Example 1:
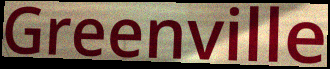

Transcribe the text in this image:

Greenville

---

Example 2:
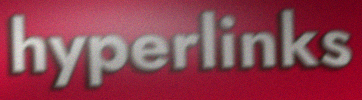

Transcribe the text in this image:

hyperlinks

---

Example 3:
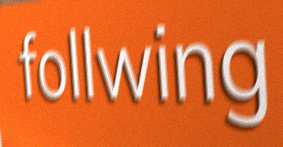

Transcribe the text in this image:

follwing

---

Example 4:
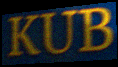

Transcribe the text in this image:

KUB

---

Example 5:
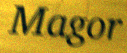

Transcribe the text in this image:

Magor